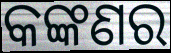
କଙ୍କଣର